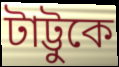
টাট্টুকে